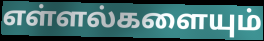
எள்ளல்களையும்